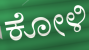
ಕೋಳಿ